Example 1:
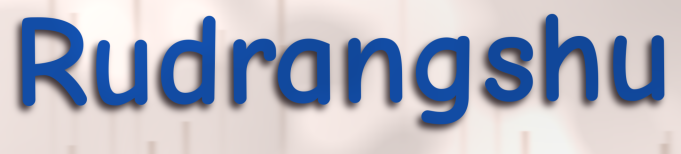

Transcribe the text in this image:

Rudrangshu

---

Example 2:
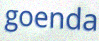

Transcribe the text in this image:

goenda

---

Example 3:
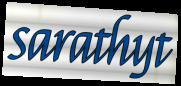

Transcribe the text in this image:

sarathyt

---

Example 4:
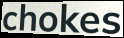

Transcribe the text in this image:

chokes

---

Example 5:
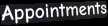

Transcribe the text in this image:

Appointments